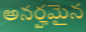
అనర్హమైన